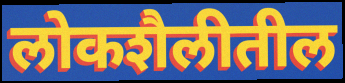
लोकशैलीतील